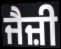
ਜੈਜ਼ੀ